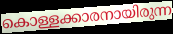
കൊള്ളക്കാരനായിരുന്ന